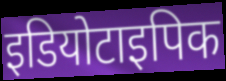
इडियोटाइपिक